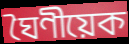
ঘৈণীয়েক